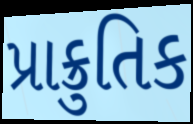
પ્રાક્રુતિક